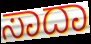
ಸಾದಾ